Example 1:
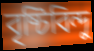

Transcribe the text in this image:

বৃষ্টিবিন্দু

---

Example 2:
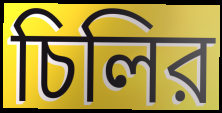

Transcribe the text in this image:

চিলির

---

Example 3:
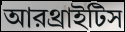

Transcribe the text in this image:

আরথ্রাইটিস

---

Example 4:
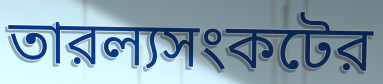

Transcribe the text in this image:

তারল্যসংকটের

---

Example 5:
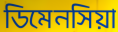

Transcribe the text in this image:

ডিমেনসিয়া